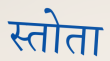
स्तोता